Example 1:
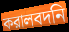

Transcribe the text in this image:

করালবদনি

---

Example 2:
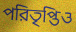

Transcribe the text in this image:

পরিতৃপ্তিও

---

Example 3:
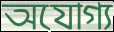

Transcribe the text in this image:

অযোগ্য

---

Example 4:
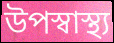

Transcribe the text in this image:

উপস্বাস্থ্য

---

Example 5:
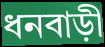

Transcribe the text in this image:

ধনবাড়ী